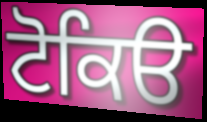
ਟੋਕਿੳ